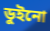
ডুইনো